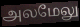
அலமேலு